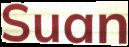
Suan